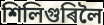
শিলিগুৰিলৈ